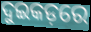
ଦୁଇକଡ଼ରେ